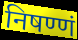
निषण्णं